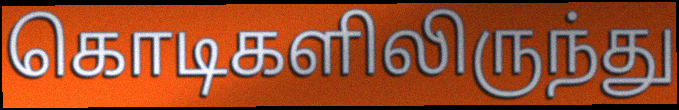
கொடிகளிலிருந்து